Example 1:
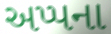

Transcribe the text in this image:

અપ્પના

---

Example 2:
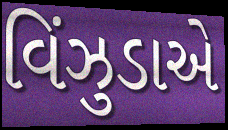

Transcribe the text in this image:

વિંઝુડાએ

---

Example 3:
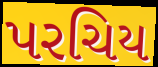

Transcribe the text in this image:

પરચિય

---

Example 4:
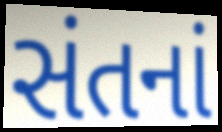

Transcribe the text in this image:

સંતનાં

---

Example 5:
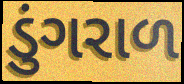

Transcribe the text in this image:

ડુંગરાળ